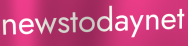
newstodaynet